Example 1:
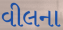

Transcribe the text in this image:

વીલના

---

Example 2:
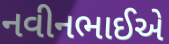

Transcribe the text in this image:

નવીનભાઈએ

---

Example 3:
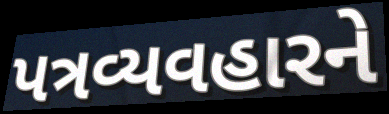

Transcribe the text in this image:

પત્રવ્યવહારને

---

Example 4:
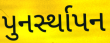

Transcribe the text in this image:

પુનર્સ્થાપન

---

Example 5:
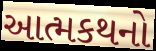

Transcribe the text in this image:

આત્મકથનો